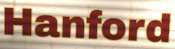
Hanford